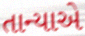
તાન્યાએ